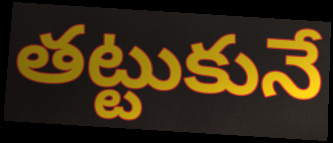
తట్టుకునే